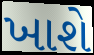
ખાશે